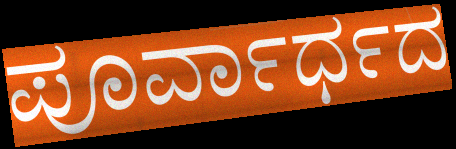
ಪೂರ್ವಾರ್ಧದ